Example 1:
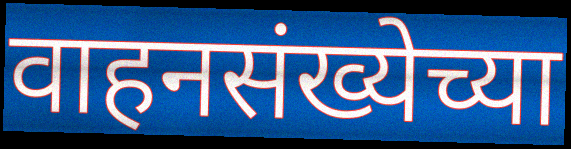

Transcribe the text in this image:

वाहनसंख्येच्या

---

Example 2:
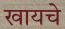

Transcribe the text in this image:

खायचे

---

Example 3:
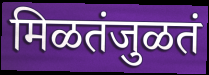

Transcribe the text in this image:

मिळतंजुळतं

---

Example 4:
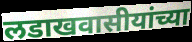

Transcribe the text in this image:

लडाखवासीयांच्या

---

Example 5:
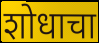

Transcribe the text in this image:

शोधाचा